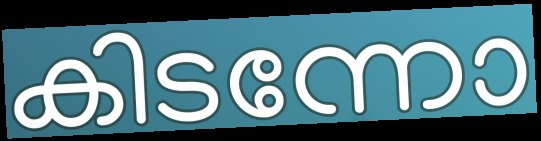
കിടന്നോ